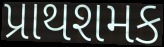
પ્રાથશમક